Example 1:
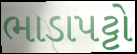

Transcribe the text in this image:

ભાડાપટ્ટો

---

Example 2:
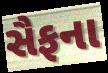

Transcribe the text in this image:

સૈફના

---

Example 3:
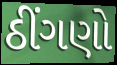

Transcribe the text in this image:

ઠીંગણો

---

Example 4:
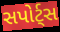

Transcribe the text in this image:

સપોર્ટ્સ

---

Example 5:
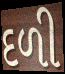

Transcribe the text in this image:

દળી